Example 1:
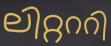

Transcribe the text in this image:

ലിറ്റററി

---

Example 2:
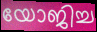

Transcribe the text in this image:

യോജിച്ച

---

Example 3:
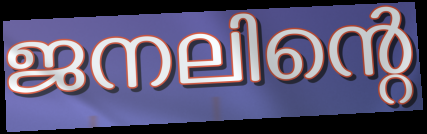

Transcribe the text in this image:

ജനലിന്റെ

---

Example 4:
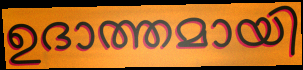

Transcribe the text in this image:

ഉദാത്തമായി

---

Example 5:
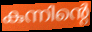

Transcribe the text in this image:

കുന്നിന്റെ